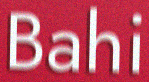
Bahi